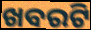
ଖବରଟି